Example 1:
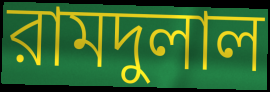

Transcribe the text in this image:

রামদুলাল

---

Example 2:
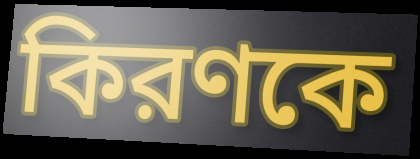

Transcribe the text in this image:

কিরণকে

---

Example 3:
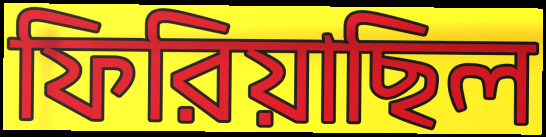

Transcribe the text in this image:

ফিরিয়াছিল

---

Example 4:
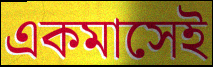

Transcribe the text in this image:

একমাসেই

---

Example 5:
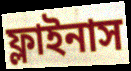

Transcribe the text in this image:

ফ্লাইনাস